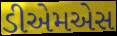
ડીએમએસ